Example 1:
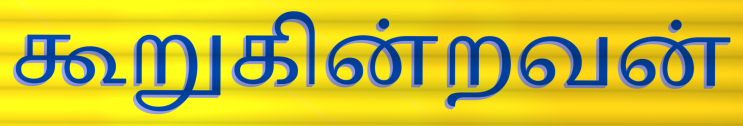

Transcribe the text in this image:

கூறுகின்றவன்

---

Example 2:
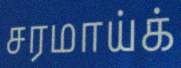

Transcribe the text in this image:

சரமாய்க்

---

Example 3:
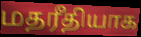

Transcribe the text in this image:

மதரீதியாக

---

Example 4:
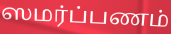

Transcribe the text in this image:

ஸமர்ப்பணம்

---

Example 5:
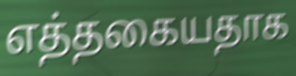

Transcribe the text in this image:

எத்தகையதாக